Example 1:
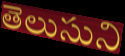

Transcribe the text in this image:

తెలుసుని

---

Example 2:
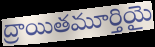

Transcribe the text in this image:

ద్రాయితమూర్తియై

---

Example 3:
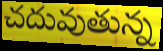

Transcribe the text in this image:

చదువుతున్న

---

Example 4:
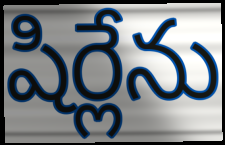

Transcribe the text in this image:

షిర్లేను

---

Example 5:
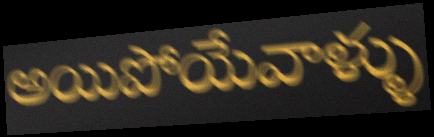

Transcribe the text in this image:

అయిపోయేవాళ్ళు